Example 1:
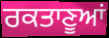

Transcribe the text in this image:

ਰਕਤਾਣੂਆਂ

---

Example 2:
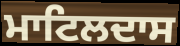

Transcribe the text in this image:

ਮਾਟਿਲਦਾਸ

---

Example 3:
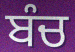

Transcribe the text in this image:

ਬੰਚ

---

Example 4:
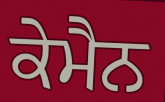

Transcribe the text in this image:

ਕੇਮੈਨ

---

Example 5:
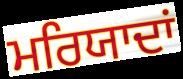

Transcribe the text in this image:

ਮਰਿਯਾਦਾਂ